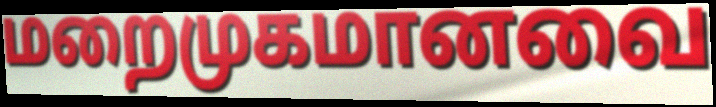
மறைமுகமானவை